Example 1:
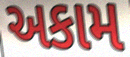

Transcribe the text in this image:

અકામ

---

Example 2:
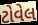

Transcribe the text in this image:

ટોવેલ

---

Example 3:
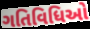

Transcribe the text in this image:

ગતિવિધિઓ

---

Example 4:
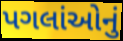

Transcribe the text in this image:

પગલાંઓનું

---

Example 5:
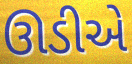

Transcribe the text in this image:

ઊડીએ